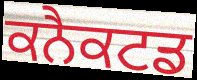
ਕਨੈਕਟਡ